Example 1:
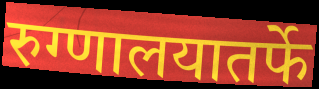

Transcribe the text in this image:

रुग्णालयातर्फे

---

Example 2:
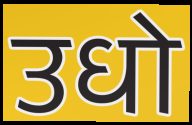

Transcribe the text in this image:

उधो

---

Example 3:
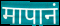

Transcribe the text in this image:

मापानं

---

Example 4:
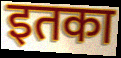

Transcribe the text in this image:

इतका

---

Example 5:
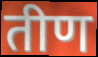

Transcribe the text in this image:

तीण